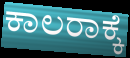
ಕಾಲರಾಕ್ಕೆ